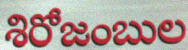
శిరోజంబుల